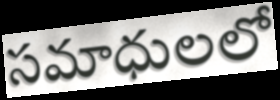
సమాధులలో